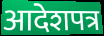
आदेशपत्र